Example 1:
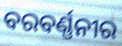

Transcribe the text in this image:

ବରବର୍ଣ୍ଣନୀର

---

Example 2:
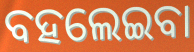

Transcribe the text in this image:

ବହଲେଇବା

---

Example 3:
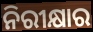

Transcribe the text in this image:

ନିରୀକ୍ଷାର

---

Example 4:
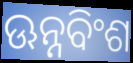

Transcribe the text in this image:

ଊନ୍ନବିଂଶ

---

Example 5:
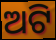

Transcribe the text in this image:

ଅଟି